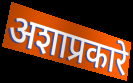
अशाप्रकारे